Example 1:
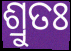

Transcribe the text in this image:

ଶ୍ରୁତଃ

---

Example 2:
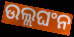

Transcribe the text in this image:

ଉଲ୍ଲଘଂନ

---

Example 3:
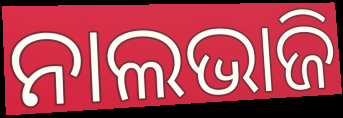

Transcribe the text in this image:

ନାଲଭାଜି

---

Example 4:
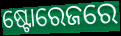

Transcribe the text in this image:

ଷ୍ଟୋରେଜରେ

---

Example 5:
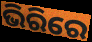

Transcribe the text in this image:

ଭିରିରେ